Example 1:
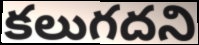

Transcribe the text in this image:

కలుగదని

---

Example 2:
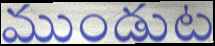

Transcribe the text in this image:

ముండుట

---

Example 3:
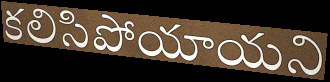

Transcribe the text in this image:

కలిసిపోయాయని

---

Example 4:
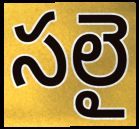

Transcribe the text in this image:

సలై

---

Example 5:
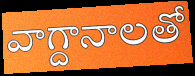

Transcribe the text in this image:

వాగ్దానాలతో